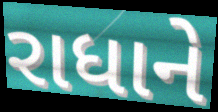
રાધાને